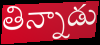
తిన్నాడు